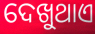
ଦେଖୁଥାଏ